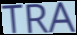
TRA